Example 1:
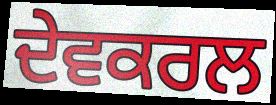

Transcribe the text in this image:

ਦੇਵਕਰਲ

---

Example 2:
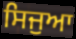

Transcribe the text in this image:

ਸਿਜੁਆ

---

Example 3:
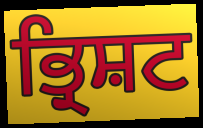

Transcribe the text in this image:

ਭ੍ਰਿਸ਼ਟ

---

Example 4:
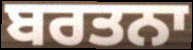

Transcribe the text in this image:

ਬਰਤਨਾ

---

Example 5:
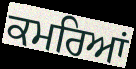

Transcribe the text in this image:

ਕਮਰਿਆਂ